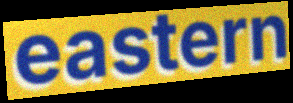
eastern